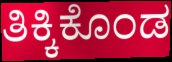
ತಿಕ್ಕಿಕೊಂಡ